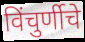
विंचुर्णीचे